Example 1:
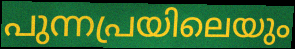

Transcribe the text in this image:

പുന്നപ്രയിലെയും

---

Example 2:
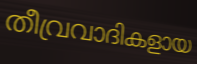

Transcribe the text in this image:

തീവ്രവാദികളായ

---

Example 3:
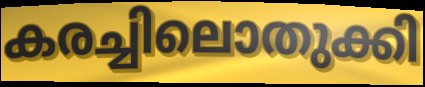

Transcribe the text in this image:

കരച്ചിലൊതുക്കി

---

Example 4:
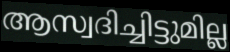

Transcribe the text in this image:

ആസ്വദിച്ചിട്ടുമില്ല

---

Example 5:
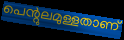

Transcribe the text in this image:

പെന്റുലമുള്ളതാണ്